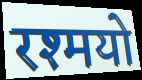
रश्मयो